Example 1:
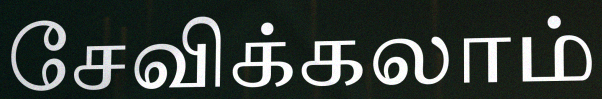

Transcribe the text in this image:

சேவிக்கலாம்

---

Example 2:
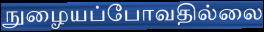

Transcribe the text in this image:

நுழையப்போவதில்லை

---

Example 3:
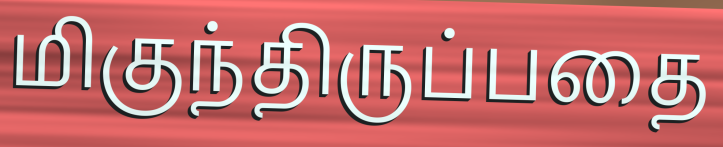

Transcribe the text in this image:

மிகுந்திருப்பதை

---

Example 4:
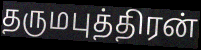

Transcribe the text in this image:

தருமபுத்திரன்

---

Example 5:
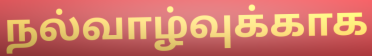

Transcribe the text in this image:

நல்வாழ்வுக்காக